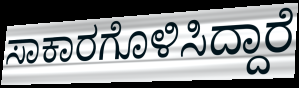
ಸಾಕಾರಗೊಳಿಸಿದ್ದಾರೆ